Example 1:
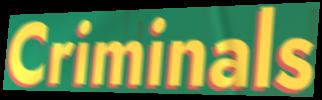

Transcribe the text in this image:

Criminals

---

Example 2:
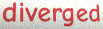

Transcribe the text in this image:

diverged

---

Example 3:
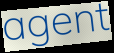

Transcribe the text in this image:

agent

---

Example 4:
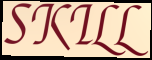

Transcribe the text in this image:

SKILL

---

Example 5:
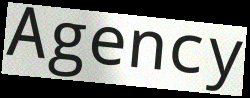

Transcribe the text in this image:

Agency